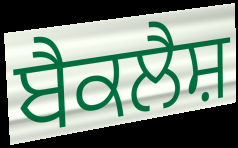
ਬੈਕਲੈਸ਼